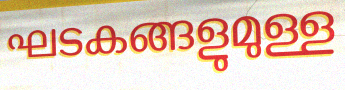
ഘടകങ്ങളുമുള്ള